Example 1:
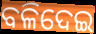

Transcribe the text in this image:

ବଳିଦେଇ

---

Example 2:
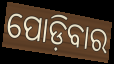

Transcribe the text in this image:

ପୋଡ଼ିବାର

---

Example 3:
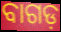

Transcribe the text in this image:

ବାଗଡ଼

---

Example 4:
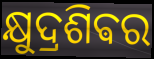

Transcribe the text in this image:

କ୍ଷୁଦ୍ରଶିଵର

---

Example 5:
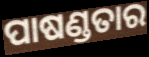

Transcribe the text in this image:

ପାଷଣ୍ଡତାର